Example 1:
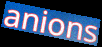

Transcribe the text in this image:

anions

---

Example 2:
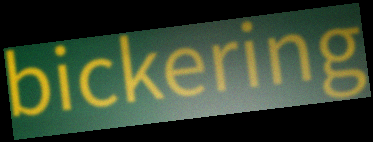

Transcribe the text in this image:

bickering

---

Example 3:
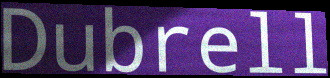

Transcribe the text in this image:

Dubrell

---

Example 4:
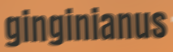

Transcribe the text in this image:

ginginianus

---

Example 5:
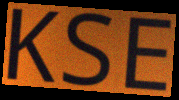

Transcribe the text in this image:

KSE